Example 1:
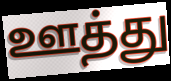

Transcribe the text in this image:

ஊத்து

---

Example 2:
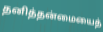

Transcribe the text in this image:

தனித்தன்மையைத்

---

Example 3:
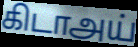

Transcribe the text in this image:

கிடாஅய்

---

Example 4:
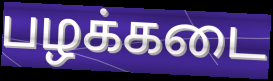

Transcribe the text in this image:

பழக்கடை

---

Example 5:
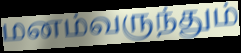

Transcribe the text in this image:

மனம்வருந்தும்